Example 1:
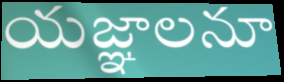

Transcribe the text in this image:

యజ్ఞాలనూ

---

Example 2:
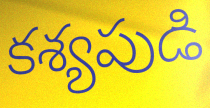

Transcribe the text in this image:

కశ్యపుడి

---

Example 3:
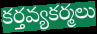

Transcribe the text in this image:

కర్తవ్యకర్మలు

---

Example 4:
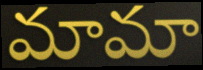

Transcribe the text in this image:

మామా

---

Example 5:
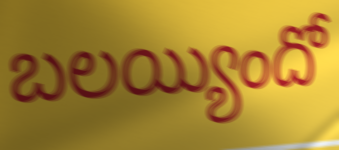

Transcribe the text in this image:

బలయ్యిందో